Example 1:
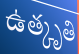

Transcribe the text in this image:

ఉత్కృతి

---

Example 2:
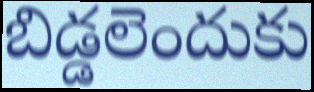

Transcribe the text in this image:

బిడ్డలెందుకు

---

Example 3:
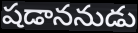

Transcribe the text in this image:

షడాననుడు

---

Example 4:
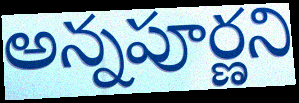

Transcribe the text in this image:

అన్నపూర్ణని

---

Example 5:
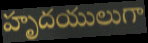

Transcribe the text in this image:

హృదయులుగా